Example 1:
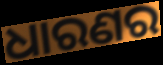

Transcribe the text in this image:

ଧାରଣର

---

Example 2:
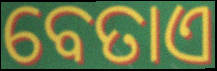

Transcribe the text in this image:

ବେତାଏ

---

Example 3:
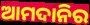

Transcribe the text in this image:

ଆମଦାନିର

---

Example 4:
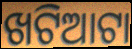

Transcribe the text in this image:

ଖଟିଆଟା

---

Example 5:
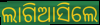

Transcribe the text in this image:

ଲାଗିଆସିଲେ